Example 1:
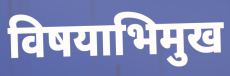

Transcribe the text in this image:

विषयाभिमुख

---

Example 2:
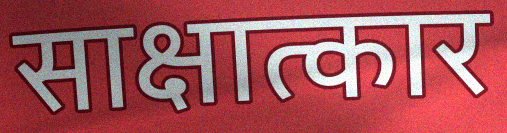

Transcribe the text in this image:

साक्षात्कार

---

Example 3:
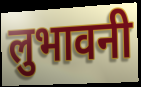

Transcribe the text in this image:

लुभावनी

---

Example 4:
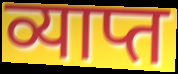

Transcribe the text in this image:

व्याप्त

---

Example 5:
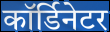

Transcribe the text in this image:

कॉर्डिनेटर